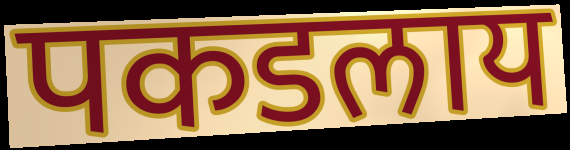
पकडलाय